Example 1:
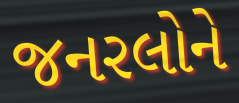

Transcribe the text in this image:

જનરલોને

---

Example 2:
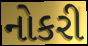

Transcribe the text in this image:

નોકરી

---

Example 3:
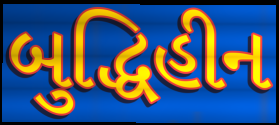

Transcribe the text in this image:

બુદ્ધિહીન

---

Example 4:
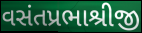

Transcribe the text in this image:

વસંતપ્રભાશ્રીજી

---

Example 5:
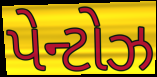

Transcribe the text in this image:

પેન્ટોઝ